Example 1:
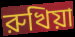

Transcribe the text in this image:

রুখিয়া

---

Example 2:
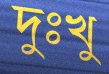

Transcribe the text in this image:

দুঃখু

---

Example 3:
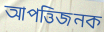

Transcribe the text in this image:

আপত্তিজনক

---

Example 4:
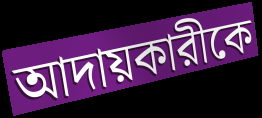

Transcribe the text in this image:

আদায়কারীকে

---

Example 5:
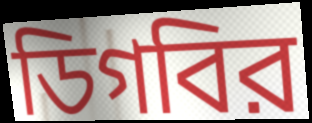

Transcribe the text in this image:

ডিগবির